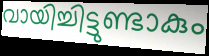
വായിച്ചിട്ടുണ്ടാകും